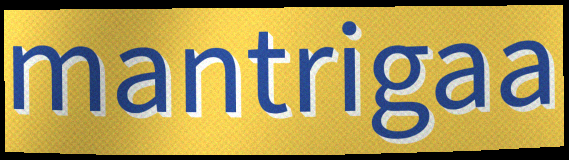
mantrigaa